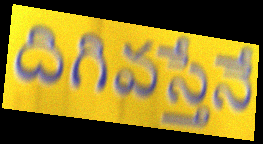
దిగివస్తేనే